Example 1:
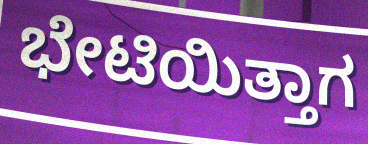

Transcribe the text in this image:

ಭೇಟಿಯಿತ್ತಾಗ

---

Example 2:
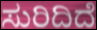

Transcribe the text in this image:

ಸುರಿದಿದೆ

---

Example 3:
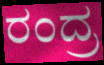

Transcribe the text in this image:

ರಂದ್ರ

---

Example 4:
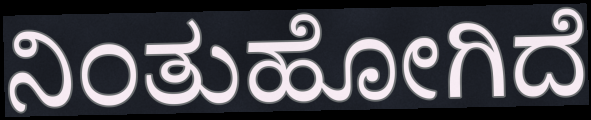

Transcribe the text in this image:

ನಿಂತುಹೋಗಿದೆ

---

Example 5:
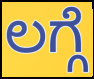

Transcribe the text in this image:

ಲಗ್ಗೆ